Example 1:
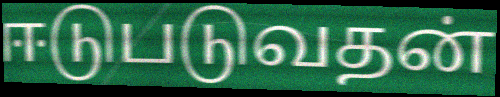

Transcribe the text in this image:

ஈடுபடுவதன்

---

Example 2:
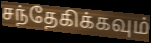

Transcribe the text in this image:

சந்தேகிக்கவும்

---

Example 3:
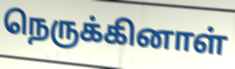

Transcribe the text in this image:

நெருக்கினாள்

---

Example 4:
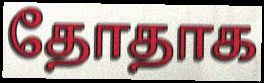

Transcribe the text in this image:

தோதாக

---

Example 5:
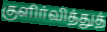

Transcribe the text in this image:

குளிர்வித்துத்